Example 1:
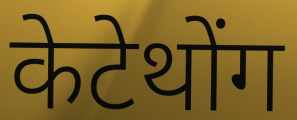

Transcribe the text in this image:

केटेथोंग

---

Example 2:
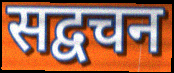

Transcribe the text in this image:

सद्वचन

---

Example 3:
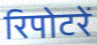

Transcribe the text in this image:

रिपोटरें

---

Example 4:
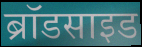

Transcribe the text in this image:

ब्रॉडसाइड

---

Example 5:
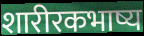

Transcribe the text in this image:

शारीरकभाष्य